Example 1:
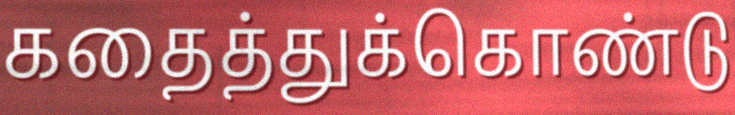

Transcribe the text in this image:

கதைத்துக்கொண்டு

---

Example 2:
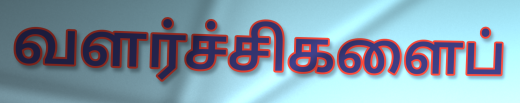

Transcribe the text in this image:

வளர்ச்சிகளைப்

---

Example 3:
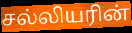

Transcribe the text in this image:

சல்லியரின்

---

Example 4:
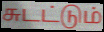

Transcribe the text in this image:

சுடட்டும்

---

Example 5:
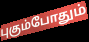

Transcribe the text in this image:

புகும்போதும்